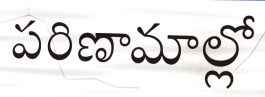
పరిణామాల్లో